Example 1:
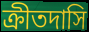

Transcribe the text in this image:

ক্রীতদাসি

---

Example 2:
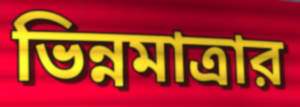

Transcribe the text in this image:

ভিন্নমাত্রার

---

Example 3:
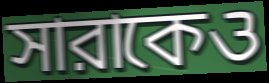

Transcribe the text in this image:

সারাকেও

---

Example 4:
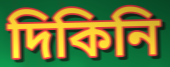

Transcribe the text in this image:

দিকিনি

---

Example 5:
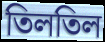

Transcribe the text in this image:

তিলতিল